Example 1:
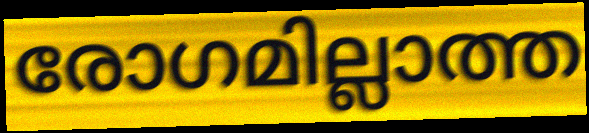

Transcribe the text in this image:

രോഗമില്ലാത്ത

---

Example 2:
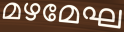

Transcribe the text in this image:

മഴമേഘ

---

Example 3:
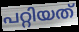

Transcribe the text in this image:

പറ്റിയത്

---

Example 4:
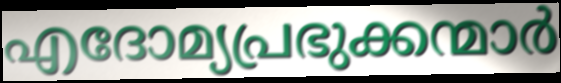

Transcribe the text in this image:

എദോമ്യപ്രഭുക്കന്മാർ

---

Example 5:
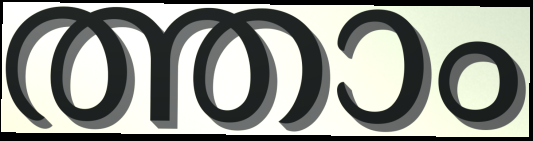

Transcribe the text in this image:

ത്താം